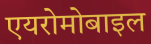
एयरोमोबाइल